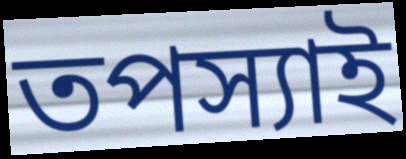
তপস্যাই